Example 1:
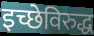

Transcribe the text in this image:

इच्छेविरुद्ध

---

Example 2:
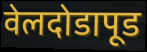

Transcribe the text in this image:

वेलदोडापूड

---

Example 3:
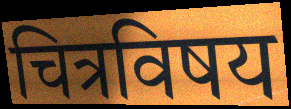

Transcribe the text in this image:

चित्रविषय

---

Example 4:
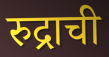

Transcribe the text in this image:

रुद्राची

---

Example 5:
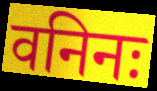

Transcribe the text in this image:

वनिनः